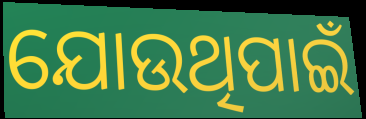
ଯୋଉଥିପାଇଁ